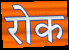
रोक